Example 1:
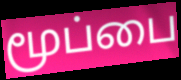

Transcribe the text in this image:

மூப்பை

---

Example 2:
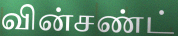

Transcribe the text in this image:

வின்சண்ட்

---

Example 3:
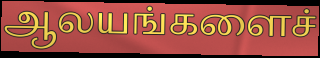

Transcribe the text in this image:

ஆலயங்களைச்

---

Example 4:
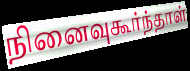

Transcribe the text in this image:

நினைவுகூர்ந்தாள்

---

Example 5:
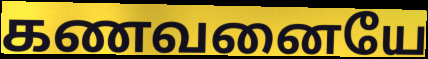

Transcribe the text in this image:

கணவனையே